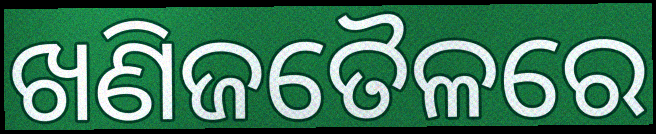
ଖଣିଜତୈଳରେ